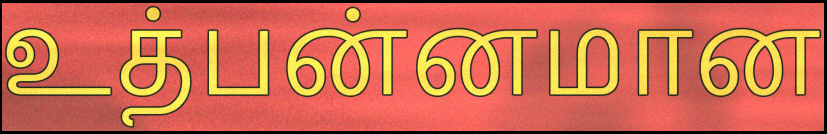
உத்பன்னமான